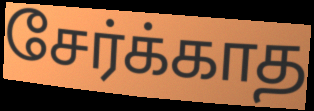
சேர்க்காத